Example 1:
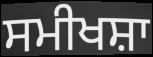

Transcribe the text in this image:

ਸਮੀਖਸ਼ਾ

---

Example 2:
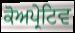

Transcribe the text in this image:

ਕੋਅਪ੍ਰੇਟਿਵ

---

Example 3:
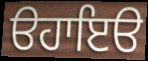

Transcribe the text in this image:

ੳਹਾਇੳ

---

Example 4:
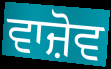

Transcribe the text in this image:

ਵਾਜ਼ੋਵ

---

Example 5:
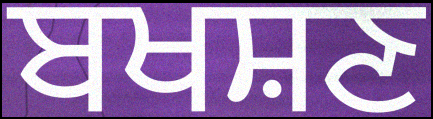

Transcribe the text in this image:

ਬਖਸ਼ਣ